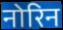
नोरिन